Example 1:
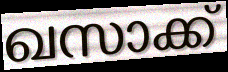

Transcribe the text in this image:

ഖസാക്ക്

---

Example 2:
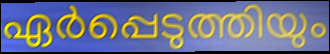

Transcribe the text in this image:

ഏർപ്പെടുത്തിയും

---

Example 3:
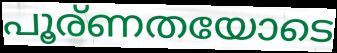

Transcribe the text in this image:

പൂര്ണതയോടെ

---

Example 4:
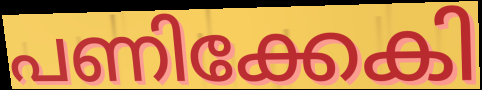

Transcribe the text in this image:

പണിക്കേകി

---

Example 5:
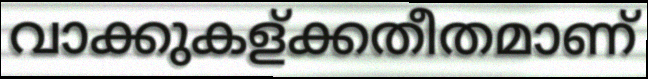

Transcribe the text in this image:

വാക്കുകള്ക്കതീതമാണ്